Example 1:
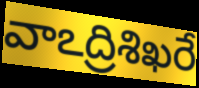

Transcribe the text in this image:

వాఽద్రిశిఖరే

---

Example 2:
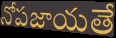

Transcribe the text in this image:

నోపజాయతే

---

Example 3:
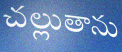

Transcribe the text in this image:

చల్లుతాను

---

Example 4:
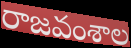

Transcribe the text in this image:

రాజవంశాల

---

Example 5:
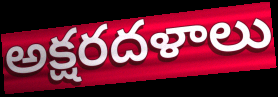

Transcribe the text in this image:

అక్షరదళాలు